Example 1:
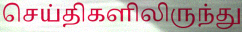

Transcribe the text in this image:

செய்திகளிலிருந்து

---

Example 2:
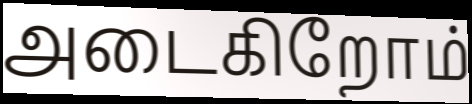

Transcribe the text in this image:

அடைகிறோம்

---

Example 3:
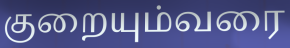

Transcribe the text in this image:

குறையும்வரை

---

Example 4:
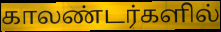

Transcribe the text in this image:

காலண்டர்களில்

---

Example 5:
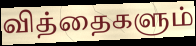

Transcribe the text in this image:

வித்தைகளும்